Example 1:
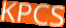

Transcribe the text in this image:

KPCS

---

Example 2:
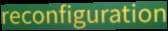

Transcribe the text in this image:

reconfiguration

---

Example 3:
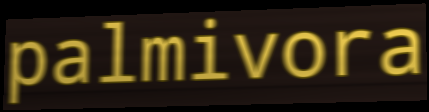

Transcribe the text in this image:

palmivora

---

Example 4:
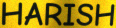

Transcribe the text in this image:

HARISH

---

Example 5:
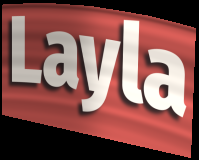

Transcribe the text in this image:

Layla